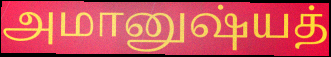
அமானுஷ்யத்